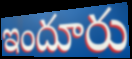
ఇందూరు